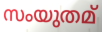
സംയുതമ്